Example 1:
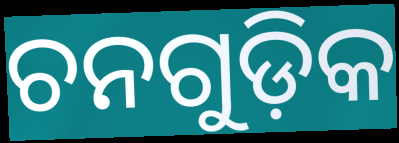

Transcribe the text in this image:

ଚନଗୁଡ଼ିକ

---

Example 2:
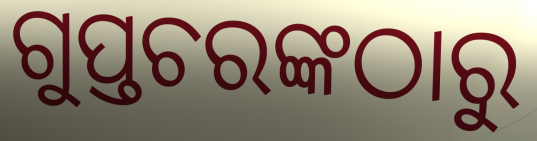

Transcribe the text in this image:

ଗୁପ୍ତଚରଙ୍କଠାରୁ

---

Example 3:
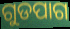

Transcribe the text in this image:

ଗୁଡପାଗ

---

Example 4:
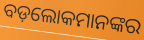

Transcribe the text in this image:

ବଡ଼ଲୋକମାନଙ୍କର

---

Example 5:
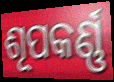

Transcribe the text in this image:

ଶୂପକର୍ଣ୍ଣ